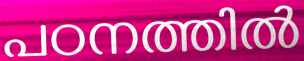
പഠനത്തിൽ